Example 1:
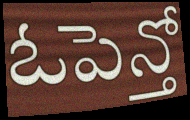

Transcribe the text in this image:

ఓపెన్తో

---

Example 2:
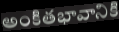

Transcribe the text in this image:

అంకితభావానికి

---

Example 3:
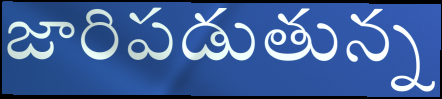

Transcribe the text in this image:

జారిపడుతున్న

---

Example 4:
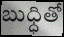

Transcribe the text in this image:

బుధ్ధితో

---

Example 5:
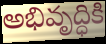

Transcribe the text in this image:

అభివృద్ధికి